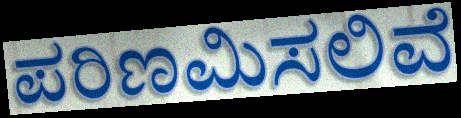
ಪರಿಣಮಿಸಲಿವೆ